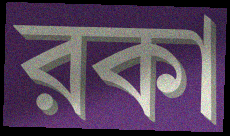
রকা